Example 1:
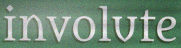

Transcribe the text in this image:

involute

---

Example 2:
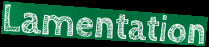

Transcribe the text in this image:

Lamentation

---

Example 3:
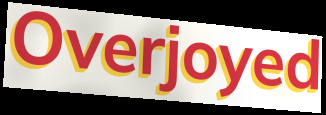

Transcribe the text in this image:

Overjoyed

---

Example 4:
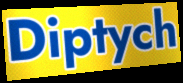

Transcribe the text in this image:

Diptych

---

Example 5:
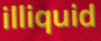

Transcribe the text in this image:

illiquid